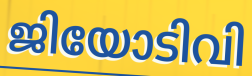
ജിയോടിവി